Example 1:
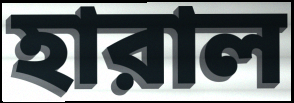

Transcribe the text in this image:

হারাল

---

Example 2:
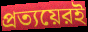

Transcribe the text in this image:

প্রত্যয়েরই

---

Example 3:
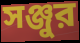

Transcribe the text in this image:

সঞ্জুর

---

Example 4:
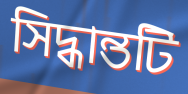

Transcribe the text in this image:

সিদ্ধান্তটি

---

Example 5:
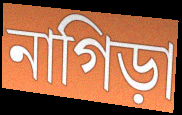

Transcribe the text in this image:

নাগিড়া